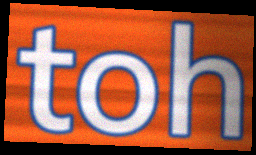
toh